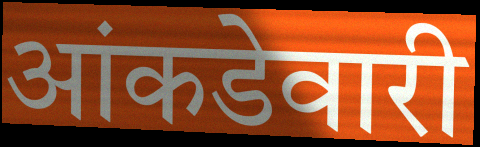
आंकडेवारी